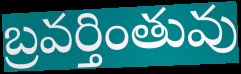
బ్రవర్తింతువు